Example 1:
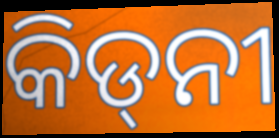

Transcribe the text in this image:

କିଡ୍‌ନୀ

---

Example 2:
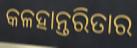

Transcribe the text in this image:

କଳହାନ୍ତରିତାର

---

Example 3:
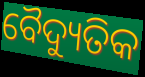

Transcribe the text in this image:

ବୈଦ୍ୟୁତିକ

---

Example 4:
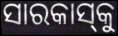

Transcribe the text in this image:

ସାରକାସ୍‌କୁ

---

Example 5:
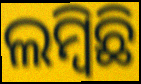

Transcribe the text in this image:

ଲମ୍ବିଛି